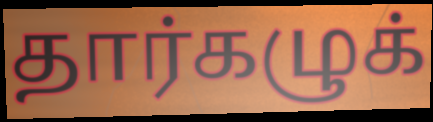
தார்கழுக்